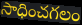
సాధించగలం